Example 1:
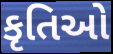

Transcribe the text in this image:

કૃતિઓ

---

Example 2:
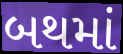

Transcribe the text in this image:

બથમાં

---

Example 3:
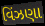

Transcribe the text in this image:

વિંઝણા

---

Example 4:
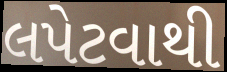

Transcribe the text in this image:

લપેટવાથી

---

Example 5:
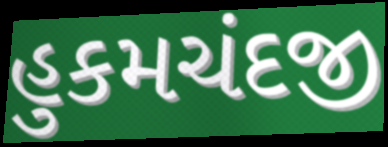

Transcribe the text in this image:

હુકમચંદજી